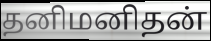
தனிமனிதன்